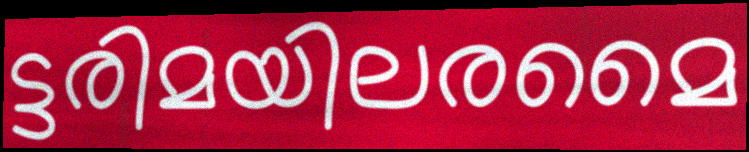
ട്ടരിമയിലരമൈ